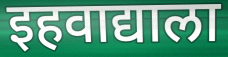
इहवाद्याला